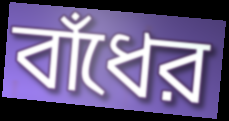
বাঁধের